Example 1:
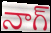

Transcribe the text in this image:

నాగ్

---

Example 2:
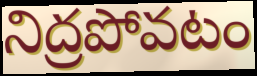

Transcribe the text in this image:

నిద్రపోవటం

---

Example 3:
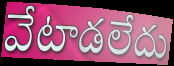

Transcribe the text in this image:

వేటాడలేదు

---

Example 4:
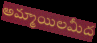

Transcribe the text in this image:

అమ్మాయిలమీద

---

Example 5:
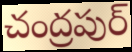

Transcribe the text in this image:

చంద్రపుర్